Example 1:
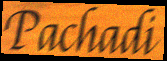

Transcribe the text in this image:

Pachadi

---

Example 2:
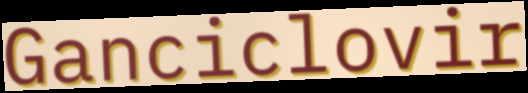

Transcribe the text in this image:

Ganciclovir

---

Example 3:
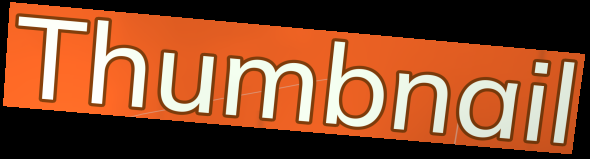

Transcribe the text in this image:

Thumbnail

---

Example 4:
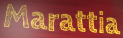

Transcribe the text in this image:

Marattia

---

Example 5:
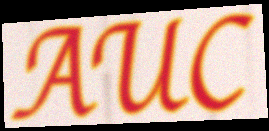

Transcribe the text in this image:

AUC